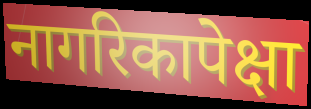
नागरिकापेक्षा